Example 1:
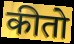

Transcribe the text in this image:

कीतो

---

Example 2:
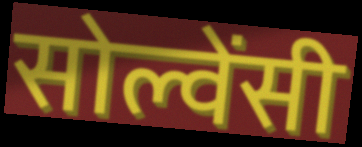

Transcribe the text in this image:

सोल्वेंसी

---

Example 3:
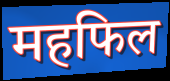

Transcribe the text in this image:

महफिल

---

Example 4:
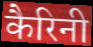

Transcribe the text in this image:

कैरिनी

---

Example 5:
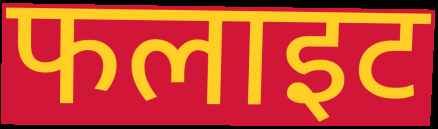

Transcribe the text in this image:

फलाइट